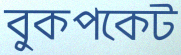
বুকপকেট